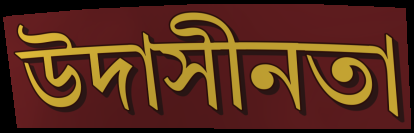
উদাসীনতা